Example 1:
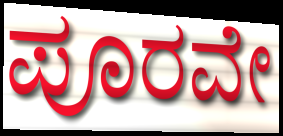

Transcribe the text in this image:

ಪೂರವೇ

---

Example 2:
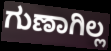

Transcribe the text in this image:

ಗುಣಾಗಿಲ್ಲ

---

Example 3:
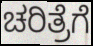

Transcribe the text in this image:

ಚರಿತ್ರೆಗೆ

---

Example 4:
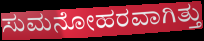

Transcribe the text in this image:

ಸುಮನೋಹರವಾಗಿತ್ತು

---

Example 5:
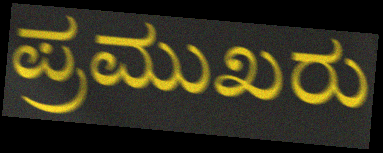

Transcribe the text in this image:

ಪ್ರಮುಖರು